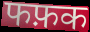
फफ़क